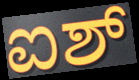
ಐಶ್